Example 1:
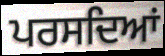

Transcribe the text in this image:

ਪਰਸਦਿਆਂ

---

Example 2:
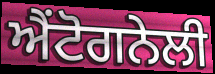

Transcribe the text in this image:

ਐਂਟੋਗਨੇਲੀ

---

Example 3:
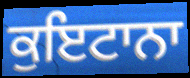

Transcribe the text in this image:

ਕੁਇਟਾਨਾ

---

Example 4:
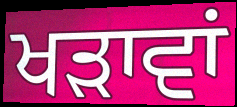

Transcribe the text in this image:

ਖੜਾਵਾਂ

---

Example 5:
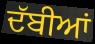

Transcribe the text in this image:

ਦੱਬੀਆਂ